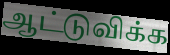
ஆட்டுவிக்க